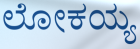
ಲೋಕಯ್ಯ